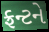
ફ્રન્ટને